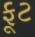
ફૂટ